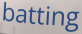
batting